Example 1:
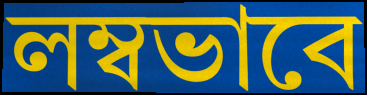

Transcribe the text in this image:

লম্বভাবে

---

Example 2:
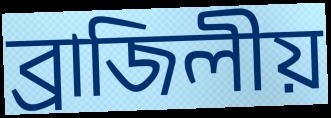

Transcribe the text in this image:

ব্রাজিলীয়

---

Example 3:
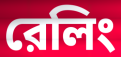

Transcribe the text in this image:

রেলিং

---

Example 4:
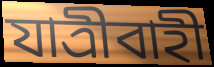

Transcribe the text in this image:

যাত্রীবাহী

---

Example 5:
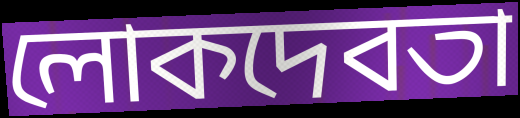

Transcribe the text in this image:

লোকদেবতা